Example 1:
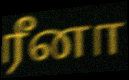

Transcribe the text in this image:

ரீனா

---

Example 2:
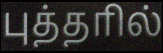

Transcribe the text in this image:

புத்தரில்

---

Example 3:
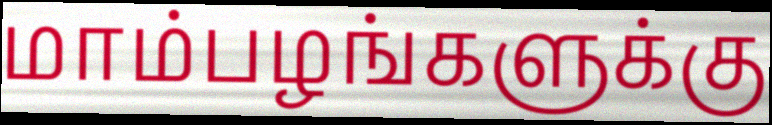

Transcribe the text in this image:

மாம்பழங்களுக்கு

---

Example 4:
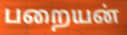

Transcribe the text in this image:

பறையன்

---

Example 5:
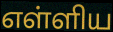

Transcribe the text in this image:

எள்ளிய